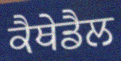
ਕੈਥੇਡੈਲ